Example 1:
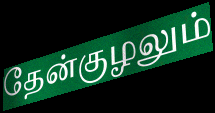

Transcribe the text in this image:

தேன்குழலும்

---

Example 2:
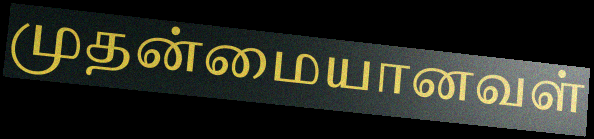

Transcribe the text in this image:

முதன்மையானவள்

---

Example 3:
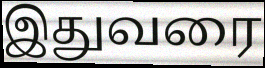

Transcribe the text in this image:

இதுவரை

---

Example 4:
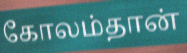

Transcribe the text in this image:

கோலம்தான்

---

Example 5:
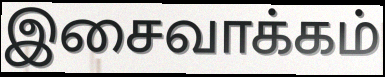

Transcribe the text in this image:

இசைவாக்கம்